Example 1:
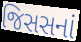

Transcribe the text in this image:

જિસસનાં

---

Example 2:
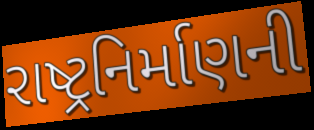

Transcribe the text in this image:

રાષ્ટ્રનિર્માણની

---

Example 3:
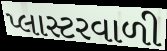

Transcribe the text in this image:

પ્લાસ્ટરવાળી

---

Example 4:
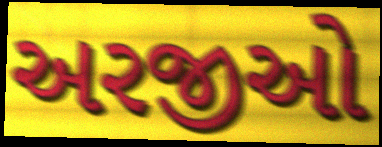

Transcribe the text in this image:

અરજીઓ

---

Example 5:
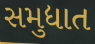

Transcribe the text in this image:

સમુદ્યાત